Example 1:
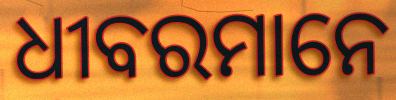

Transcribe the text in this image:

ଧୀବରମାନେ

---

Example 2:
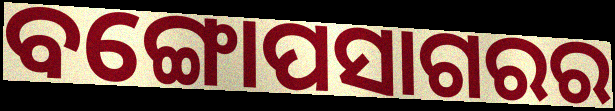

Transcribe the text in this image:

ବଙ୍ଗୋପସାଗରର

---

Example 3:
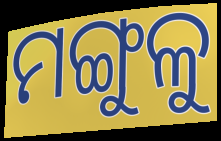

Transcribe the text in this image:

ମଙ୍ଗୁଳୁ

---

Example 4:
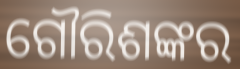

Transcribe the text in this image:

ଗୌରିଶଙ୍କର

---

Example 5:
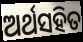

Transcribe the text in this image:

ଅର୍ଥସହିତ